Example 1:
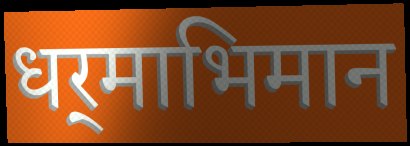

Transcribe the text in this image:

धर्माभिमान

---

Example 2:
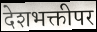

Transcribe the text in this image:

देशभक्तीपर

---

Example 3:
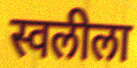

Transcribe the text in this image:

स्वलीला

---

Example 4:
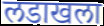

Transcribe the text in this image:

लडाखला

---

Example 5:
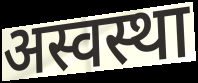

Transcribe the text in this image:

अस्वस्था